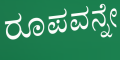
ರೂಪವನ್ನೇ